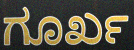
ಗೂರ್ಖ